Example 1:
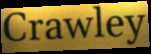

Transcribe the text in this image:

Crawley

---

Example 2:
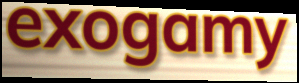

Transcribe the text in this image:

exogamy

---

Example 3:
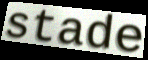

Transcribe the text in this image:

stade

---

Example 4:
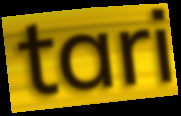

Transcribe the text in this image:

tari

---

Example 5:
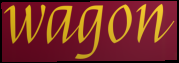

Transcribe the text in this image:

wagon